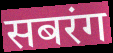
सबरंग